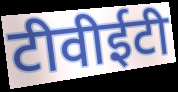
टीवीईटी